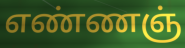
எண்ணஞ்